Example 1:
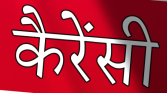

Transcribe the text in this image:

कैरेंसी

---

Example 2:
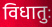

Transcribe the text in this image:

विधातुः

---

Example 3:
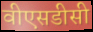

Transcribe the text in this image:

वीएसडीसी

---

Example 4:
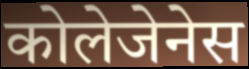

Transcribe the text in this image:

कोलेजेनेस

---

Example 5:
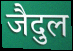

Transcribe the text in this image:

जैदुल